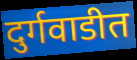
दुर्गवाडीत